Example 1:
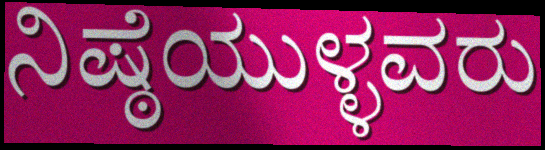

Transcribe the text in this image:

ನಿಷ್ಠೆಯುಳ್ಳವರು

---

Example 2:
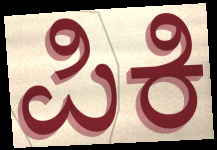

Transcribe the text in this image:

ಪಿಕಿ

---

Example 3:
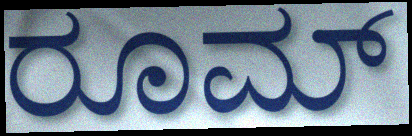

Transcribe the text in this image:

ರೂಮ್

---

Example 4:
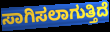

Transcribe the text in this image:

ಸಾಗಿಸಲಾಗುತ್ತಿದೆ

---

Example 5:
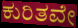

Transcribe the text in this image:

ಕುರಿತವೇ